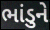
ભાંડુને